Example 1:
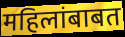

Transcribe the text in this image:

महिलांबाबत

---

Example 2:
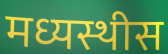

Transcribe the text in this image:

मध्यस्थीस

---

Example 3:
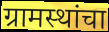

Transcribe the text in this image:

ग्रामस्थांचा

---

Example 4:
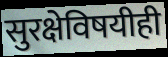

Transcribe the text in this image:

सुरक्षेविषयीही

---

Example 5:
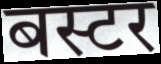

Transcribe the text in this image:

बस्टर